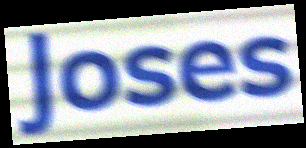
Joses